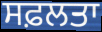
ਸਫ਼ਲਤਾ